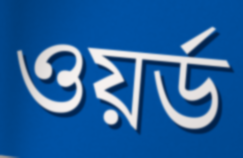
ওয়র্ড